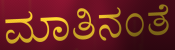
ಮಾತಿನಂತೆ